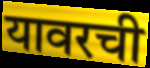
यावरची